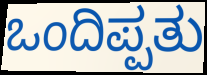
ಒಂದಿಪ್ಪತು